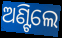
ଅଣ୍ଟିଲେ